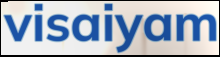
visaiyam